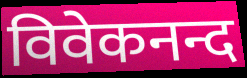
विवेकनन्द